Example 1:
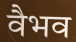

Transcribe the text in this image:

वैभव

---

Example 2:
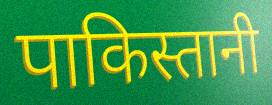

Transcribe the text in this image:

पाकिस्तानी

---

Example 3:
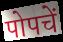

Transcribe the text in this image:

पोपचें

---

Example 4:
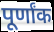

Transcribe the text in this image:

पूर्णांक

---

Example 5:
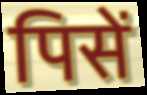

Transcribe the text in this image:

पिसें